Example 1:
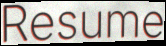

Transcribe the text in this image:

Resume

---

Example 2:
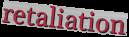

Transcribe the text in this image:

retaliation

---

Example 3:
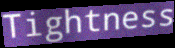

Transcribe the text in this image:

Tightness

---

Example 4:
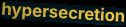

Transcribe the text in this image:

hypersecretion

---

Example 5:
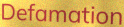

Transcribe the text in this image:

Defamation